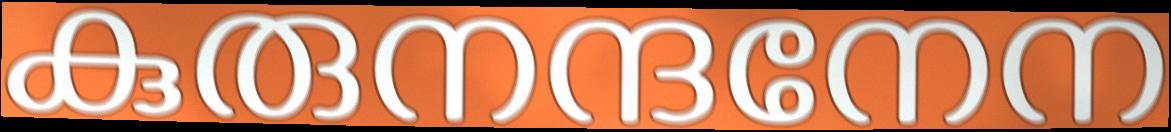
കുരുനന്ദനേന